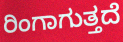
ರಿಂಗಾಗುತ್ತದೆ